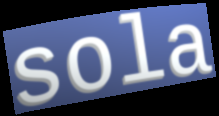
sola